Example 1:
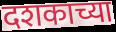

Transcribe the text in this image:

दशकाच्या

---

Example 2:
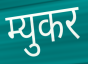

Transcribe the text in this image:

म्युकर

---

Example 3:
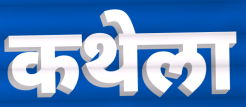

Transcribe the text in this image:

कथेला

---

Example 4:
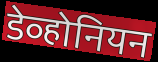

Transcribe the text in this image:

डेव्होनियन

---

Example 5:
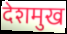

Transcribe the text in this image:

देशमुख